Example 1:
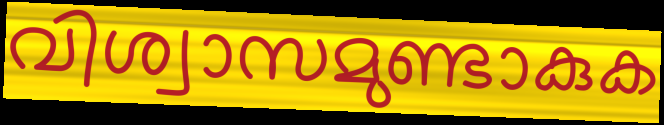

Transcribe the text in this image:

വിശ്വാസമുണ്ടാകുക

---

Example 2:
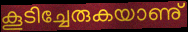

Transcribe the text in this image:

കൂടിച്ചേരുകയാണു്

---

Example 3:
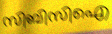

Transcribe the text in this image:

സിബിസിഐ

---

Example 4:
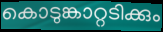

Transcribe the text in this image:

കൊടുങ്കാറ്റടിക്കും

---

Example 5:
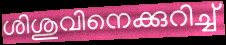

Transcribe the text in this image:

ശിശുവിനെക്കുറിച്ച്